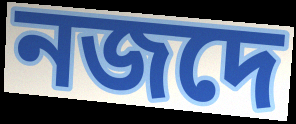
নজদে